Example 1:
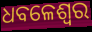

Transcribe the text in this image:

ଧବଳେଶ୍ଵର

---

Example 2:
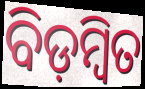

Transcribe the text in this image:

ବିଡ଼ମ୍ବିତ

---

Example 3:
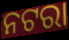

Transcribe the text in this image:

ନଟରା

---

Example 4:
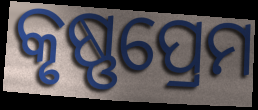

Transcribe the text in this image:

କୃଷ୍ଣପ୍ରେମ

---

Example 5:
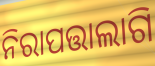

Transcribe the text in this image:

ନିରାପତ୍ତାଲାଗି